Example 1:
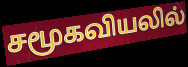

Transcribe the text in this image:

சமூகவியலில்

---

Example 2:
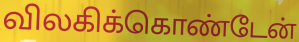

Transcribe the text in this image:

விலகிக்கொண்டேன்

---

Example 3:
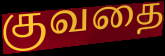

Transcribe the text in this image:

குவதை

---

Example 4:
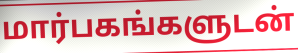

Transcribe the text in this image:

மார்பகங்களுடன்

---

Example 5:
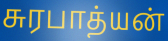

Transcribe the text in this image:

சுரபாத்யன்